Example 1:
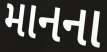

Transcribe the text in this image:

માનના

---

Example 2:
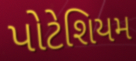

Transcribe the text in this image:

પોટેશિયમ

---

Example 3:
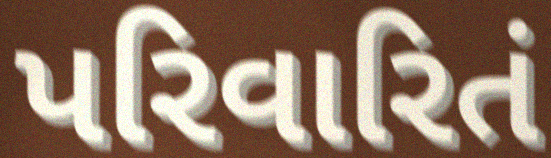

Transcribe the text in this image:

પરિવારિતં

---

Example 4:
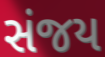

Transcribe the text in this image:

સંજય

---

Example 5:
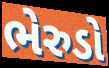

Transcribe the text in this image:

ભેરુડો